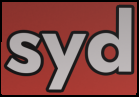
syd